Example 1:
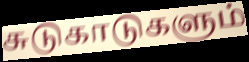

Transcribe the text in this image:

சுடுகாடுகளும்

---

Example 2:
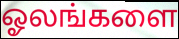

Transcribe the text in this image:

ஓலங்களை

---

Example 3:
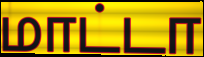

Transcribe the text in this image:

மாட்டா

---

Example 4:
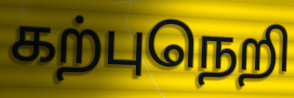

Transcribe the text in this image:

கற்புநெறி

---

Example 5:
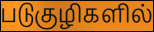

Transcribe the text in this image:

படுகுழிகளில்